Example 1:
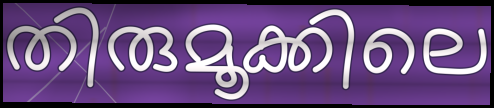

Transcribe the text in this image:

തിരുമൂക്കിലെ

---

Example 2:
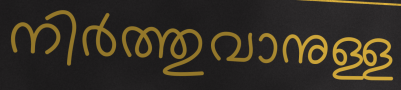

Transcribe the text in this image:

നിർത്തുവാനുള്ള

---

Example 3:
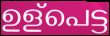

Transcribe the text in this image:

ഉള്പെട്ട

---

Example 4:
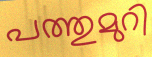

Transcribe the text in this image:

പത്തുമുറി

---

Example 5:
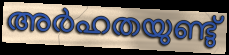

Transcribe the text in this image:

അർഹതയുണ്ടു്